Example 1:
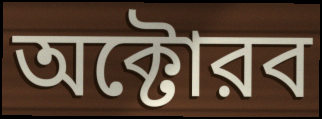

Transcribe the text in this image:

অক্টোরব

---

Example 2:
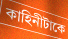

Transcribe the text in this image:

কাহিনীটাকে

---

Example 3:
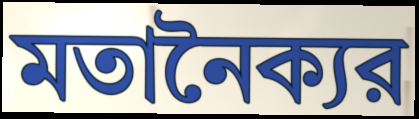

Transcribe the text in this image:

মতানৈক্যর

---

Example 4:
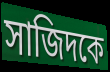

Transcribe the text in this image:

সাজিদকে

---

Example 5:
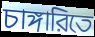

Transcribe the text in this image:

চাঙ্গারিতে